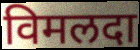
विमलदा